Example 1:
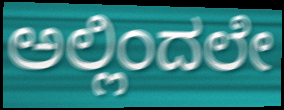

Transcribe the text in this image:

ಅಲ್ಲಿಂದಲೇ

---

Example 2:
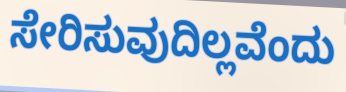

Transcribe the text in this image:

ಸೇರಿಸುವುದಿಲ್ಲವೆಂದು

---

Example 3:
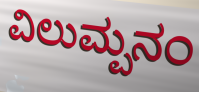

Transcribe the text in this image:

ವಿಲುಮ್ಪನಂ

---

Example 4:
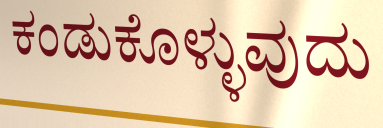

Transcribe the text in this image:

ಕಂಡುಕೊಳ್ಳುವುದು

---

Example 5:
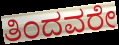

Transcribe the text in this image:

ತಿಂದವರೇ